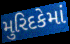
મુરિદકેમાં